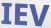
IEV